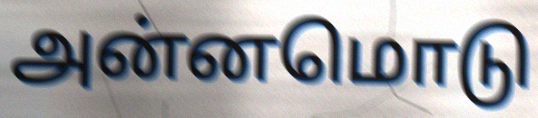
அன்னமொடு